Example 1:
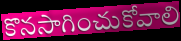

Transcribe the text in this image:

కొనసాగించుకోవాలి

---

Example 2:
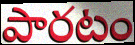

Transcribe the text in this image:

పారటం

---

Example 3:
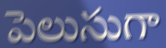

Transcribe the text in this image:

పెలుసుగా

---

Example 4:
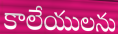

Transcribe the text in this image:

కాలేయులను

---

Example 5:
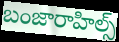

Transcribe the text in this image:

బంజారాహిల్స్